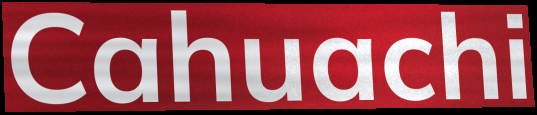
Cahuachi